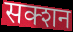
सक्शन